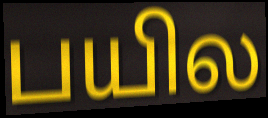
பயில